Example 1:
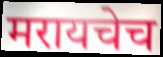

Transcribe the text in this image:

मरायचेच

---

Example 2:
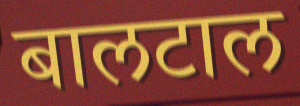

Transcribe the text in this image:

बालटाल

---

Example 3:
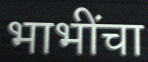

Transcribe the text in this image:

भाभींचा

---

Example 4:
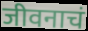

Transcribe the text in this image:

जीवनाचं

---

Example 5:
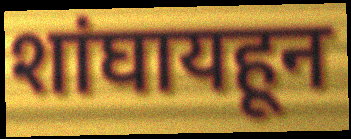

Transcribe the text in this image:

शांघायहून